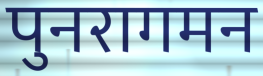
पुनरागमन